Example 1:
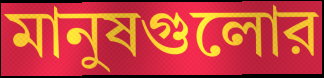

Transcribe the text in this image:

মানুষগুলোর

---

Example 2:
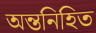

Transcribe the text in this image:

অন্তনিহিত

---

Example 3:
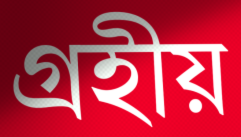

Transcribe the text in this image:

গ্রহীয়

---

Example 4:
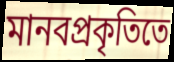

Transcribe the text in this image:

মানবপ্রকৃতিতে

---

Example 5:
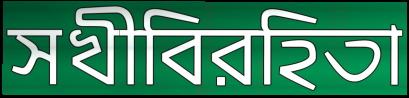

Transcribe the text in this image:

সখীবিরহিতা